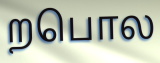
றபொல